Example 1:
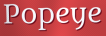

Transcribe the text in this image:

Popeye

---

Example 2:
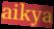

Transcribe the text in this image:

aikya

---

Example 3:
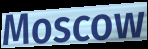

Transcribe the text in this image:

Moscow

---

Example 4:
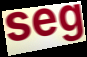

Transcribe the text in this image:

seg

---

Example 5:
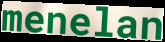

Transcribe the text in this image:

menelan